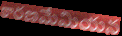
కారణమేమియన